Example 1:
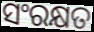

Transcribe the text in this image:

ସଂରକ୍ଷତ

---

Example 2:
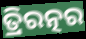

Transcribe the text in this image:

ତ୍ରିରତ୍ନର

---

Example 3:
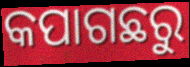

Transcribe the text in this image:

କପାଗଛରୁ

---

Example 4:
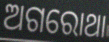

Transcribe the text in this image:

ଅଗରୋଥା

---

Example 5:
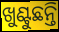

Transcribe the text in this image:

ଖୁଣ୍ଟୁଛନ୍ତି